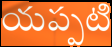
యప్పటి